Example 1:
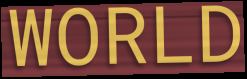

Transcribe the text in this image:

WORLD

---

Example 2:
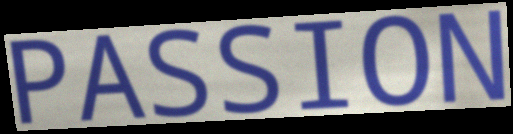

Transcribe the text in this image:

PASSION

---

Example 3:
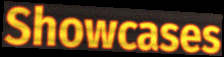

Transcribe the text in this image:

Showcases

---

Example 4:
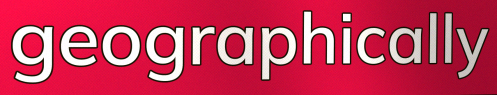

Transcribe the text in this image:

geographically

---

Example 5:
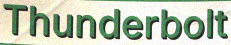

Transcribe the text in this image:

Thunderbolt